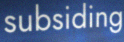
subsiding